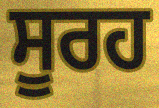
ਸੂਰਹ